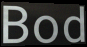
Bod